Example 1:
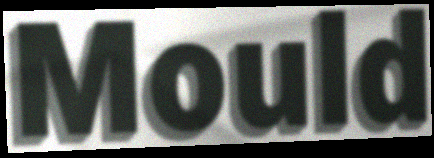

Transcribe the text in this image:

Mould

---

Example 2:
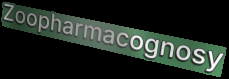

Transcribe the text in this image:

Zoopharmacognosy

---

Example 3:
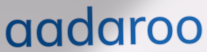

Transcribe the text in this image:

aadaroo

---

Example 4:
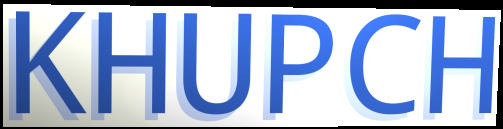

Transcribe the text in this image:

KHUPCH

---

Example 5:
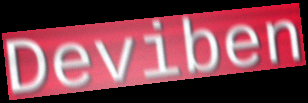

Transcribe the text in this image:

Deviben